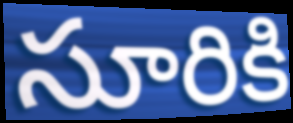
సూరికి